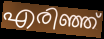
എരിഞ്ഞ്